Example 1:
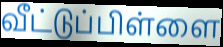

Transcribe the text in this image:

வீட்டுப்பிள்ளை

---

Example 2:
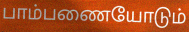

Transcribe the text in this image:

பாம்பணையோடும்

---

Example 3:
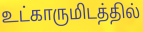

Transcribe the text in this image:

உட்காருமிடத்தில்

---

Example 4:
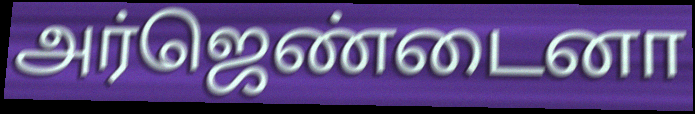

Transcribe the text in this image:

அர்ஜெண்டைனா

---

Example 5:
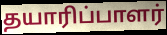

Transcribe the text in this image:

தயாரிப்பாளர்